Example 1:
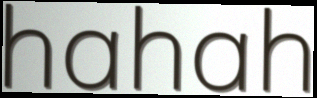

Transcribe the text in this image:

hahah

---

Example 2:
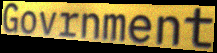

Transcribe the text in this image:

Govrnment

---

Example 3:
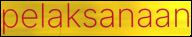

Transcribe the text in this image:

pelaksanaan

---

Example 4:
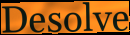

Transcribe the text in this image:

Desolve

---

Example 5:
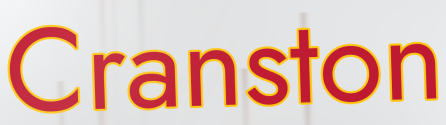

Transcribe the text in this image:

Cranston